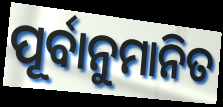
ପୂର୍ବାନୁମାନିତ